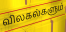
விலகல்களும்